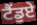
ਟੈਂਡੁਏ